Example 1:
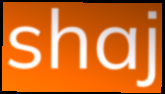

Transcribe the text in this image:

shaj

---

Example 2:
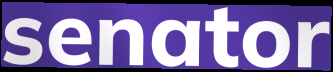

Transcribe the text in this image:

senator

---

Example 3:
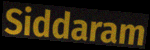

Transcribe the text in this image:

Siddaram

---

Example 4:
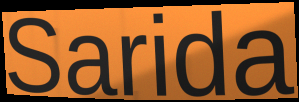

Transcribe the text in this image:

Sarida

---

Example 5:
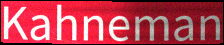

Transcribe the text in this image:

Kahneman